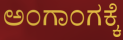
ಅಂಗಾಂಗಕ್ಕೆ